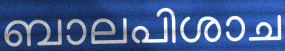
ബാലപിശാച